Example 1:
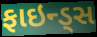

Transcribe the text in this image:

ફાઇન્ડ્સ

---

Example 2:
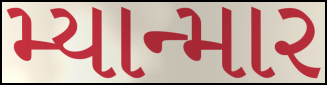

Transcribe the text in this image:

મ્યાન્માર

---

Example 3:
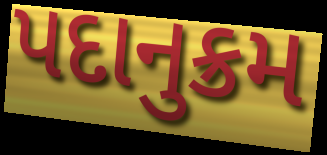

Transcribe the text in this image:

પદાનુક્રમ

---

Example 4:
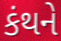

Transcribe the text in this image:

કંથને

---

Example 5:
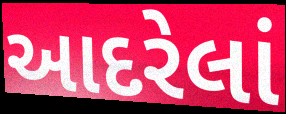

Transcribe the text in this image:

આદરેલાં